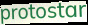
protostar